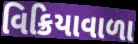
વિક્રિયાવાળા